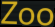
Zoo